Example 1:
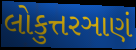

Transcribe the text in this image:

લોકુત્તરઞાણં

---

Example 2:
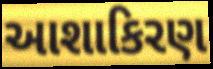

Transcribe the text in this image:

આશાકિરણ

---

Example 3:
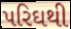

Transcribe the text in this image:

પરિઘથી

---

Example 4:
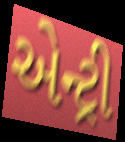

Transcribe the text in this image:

એન્ટ્રી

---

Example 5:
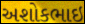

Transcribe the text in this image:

અશોકભાઇ